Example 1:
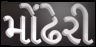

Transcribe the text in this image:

મોંઢેરી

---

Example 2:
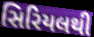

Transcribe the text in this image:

સિરિયલથી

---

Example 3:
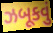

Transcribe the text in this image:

ઝબૂકવું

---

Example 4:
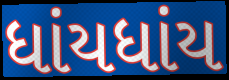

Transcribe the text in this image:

ધાંયધાંય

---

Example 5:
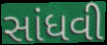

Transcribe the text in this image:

સાંધવી